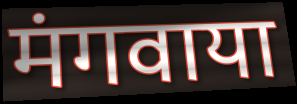
मंगवाया